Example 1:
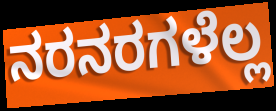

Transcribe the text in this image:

ನರನರಗಳೆಲ್ಲ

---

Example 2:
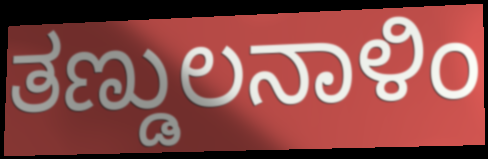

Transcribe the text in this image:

ತಣ್ಡುಲನಾಳಿಂ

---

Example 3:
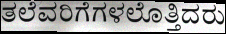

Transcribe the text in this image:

ತಲೆವರಿಗೆಗಳಲೊತ್ತಿದರು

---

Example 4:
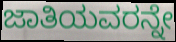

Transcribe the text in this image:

ಜಾತಿಯವರನ್ನೇ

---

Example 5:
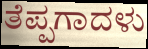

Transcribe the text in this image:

ತೆಪ್ಪಗಾದಳು